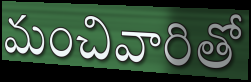
మంచివారితో